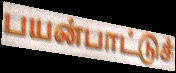
பயன்பாட்டுச்